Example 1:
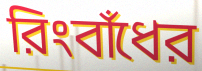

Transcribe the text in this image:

রিংবাঁধের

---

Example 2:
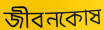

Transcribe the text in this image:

জীবনকোষ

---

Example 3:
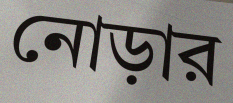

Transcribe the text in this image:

নোড়ার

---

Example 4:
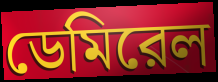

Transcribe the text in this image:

ডেমিরেল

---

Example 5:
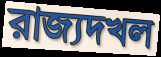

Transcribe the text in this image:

রাজ্যদখল